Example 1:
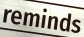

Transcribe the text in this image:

reminds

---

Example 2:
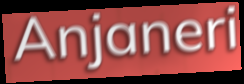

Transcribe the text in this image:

Anjaneri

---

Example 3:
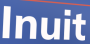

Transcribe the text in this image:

Inuit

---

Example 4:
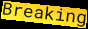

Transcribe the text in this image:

Breaking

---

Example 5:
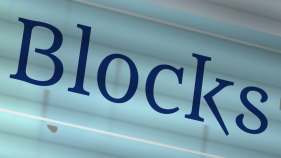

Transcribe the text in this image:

Blocks